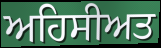
ਅਹਿਸੀਅਤ